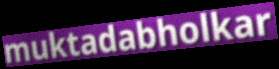
muktadabholkar